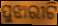
ପୁଝାରୀଟି